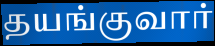
தயங்குவார்